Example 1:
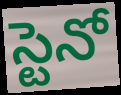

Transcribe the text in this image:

స్టెనో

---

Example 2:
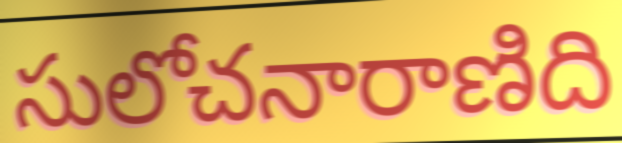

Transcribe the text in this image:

సులోచనారాణిది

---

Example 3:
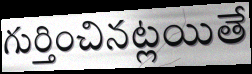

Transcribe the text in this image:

గుర్తించినట్లయితే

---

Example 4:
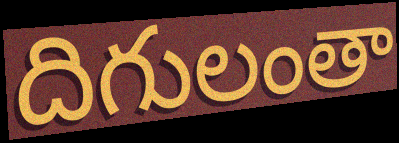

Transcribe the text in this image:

దిగులంతా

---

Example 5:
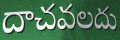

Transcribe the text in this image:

దాచవలదు